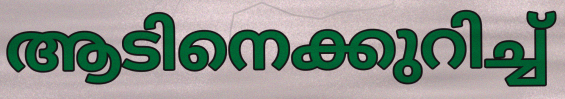
ആടിനെക്കുറിച്ച്